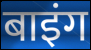
बाइंग